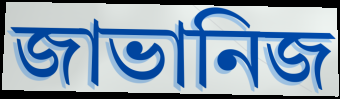
জাভানিজ